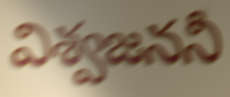
విశ్వజననీ